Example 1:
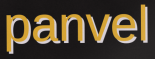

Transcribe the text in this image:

panvel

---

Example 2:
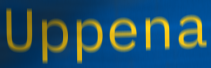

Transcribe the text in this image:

Uppena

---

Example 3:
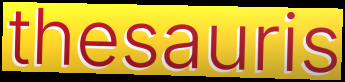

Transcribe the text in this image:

thesauris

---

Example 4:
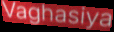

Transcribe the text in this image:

Vaghasiya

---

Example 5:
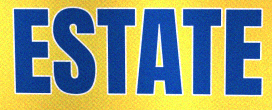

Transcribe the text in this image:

ESTATE